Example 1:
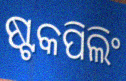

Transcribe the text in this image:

ଷ୍ଟକପିଲିଂ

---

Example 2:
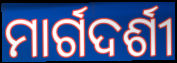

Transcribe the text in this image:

ମାର୍ଗଦର୍ଶୀ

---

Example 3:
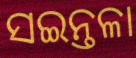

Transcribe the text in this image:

ସଇନ୍ତଳା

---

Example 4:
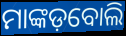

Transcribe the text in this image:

ମାଙ୍କଡ଼ବୋଲି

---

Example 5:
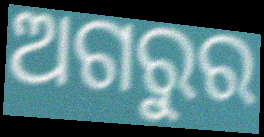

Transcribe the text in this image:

ଅଗରୁର